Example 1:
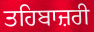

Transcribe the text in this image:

ਤਹਿਬਾਜ਼ਰੀ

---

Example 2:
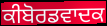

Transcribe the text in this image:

ਕੀਬੋਰਡਵਾਦਕ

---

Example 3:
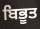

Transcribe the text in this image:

ਬਿਭੂਤ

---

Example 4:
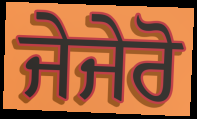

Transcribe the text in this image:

ਜੇਜੇਰੋ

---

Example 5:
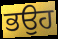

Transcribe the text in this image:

ਭਉਹ